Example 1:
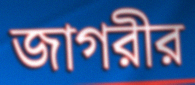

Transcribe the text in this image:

জাগরীর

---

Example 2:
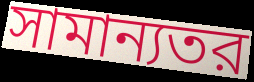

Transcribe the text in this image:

সামান্যতর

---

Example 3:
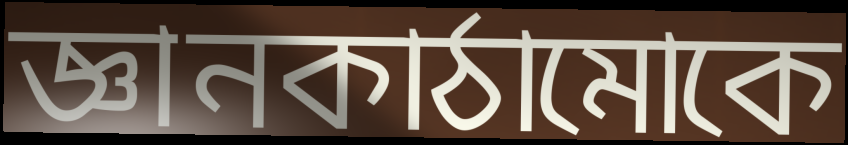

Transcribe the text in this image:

জ্ঞানকাঠামোকে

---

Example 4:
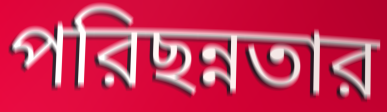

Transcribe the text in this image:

পরিছন্নতার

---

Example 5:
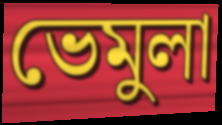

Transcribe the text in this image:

ভেমুলা